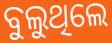
ବୁଲୁଥିଲେ